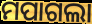
ମପାଗଲା